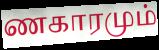
ணகாரமும்